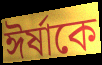
ঈর্ষাকে